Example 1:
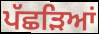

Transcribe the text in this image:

ਪੱਛੜਿਆਂ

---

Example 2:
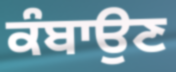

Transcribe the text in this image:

ਕੰਬਾਉਣ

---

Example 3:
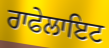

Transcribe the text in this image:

ਰਾਫੇਲਾਇਟ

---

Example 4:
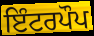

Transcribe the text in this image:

ਇੰਟਰਪੌਪ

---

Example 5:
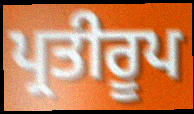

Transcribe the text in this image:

ਪ੍ਰਤੀਰੂਪ